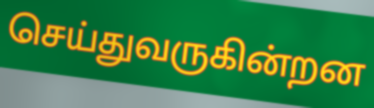
செய்துவருகின்றன